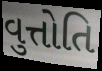
વુત્તોતિ